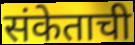
संकेताची